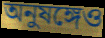
অনুষঙ্গেও